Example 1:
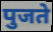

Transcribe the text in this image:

पुजते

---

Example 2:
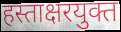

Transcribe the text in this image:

हस्ताक्षरयुक्त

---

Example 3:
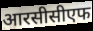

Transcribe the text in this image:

आरसीसीएफ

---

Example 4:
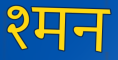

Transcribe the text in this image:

श्मन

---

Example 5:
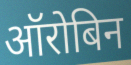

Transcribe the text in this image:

ऑरोबिन